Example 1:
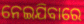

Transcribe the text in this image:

ନେଇଯିବାରେ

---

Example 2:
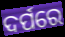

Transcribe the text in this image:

ଦର୍ପରେ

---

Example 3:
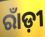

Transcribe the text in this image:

ରାଁଡ଼ୀ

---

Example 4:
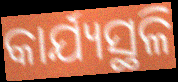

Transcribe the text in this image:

କାର୍ଯ୍ୟସ୍ଥଳି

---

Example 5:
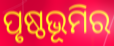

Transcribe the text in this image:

ପୃଷ୍ଠଭୂମିର